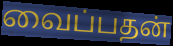
வைப்பதன்